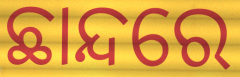
ଛାନ୍ଦରେ